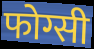
फोग्सी